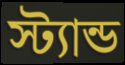
স্ট্যান্ড